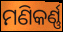
ମଣିକର୍ଣ୍ଣ